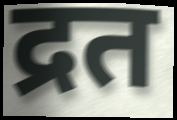
द्रत